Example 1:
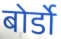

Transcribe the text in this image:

बोर्डो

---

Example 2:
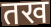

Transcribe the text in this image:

तख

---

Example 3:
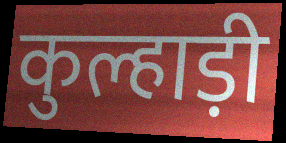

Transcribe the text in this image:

कुल्हाड़ी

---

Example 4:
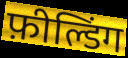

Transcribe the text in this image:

फ़ील्डिंग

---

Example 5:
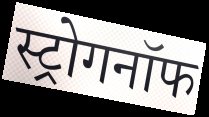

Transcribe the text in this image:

स्ट्रोगनॉफ